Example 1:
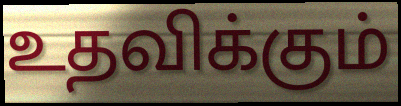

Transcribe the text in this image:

உதவிக்கும்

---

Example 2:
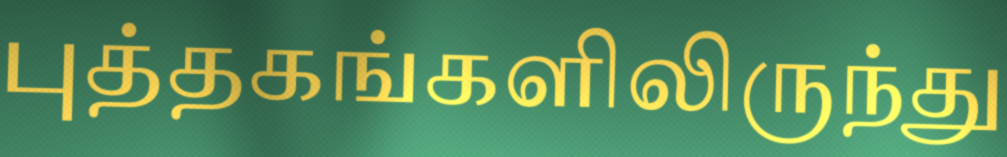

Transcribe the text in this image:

புத்தகங்களிலிருந்து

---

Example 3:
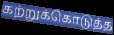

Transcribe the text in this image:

கற்றுக்கொடுத்த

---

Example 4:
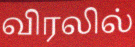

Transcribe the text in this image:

விரலில்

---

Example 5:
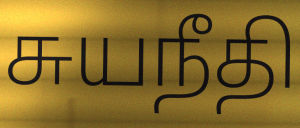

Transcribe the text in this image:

சுயநீதி